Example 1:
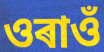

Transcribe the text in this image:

ওৰাওঁ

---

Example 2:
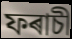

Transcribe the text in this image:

ফৰাচী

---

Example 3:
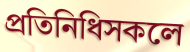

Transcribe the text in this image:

প্ৰতিনিধিসকলে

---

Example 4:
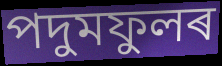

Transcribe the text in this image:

পদুমফুলৰ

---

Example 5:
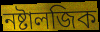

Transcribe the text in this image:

নষ্টালজিক